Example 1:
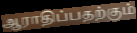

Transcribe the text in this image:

ஆராதிப்பதற்கும்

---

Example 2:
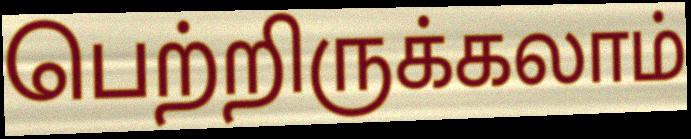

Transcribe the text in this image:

பெற்றிருக்கலாம்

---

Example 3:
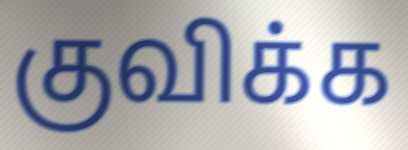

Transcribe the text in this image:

குவிக்க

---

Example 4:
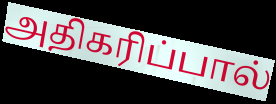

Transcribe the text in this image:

அதிகரிப்பால்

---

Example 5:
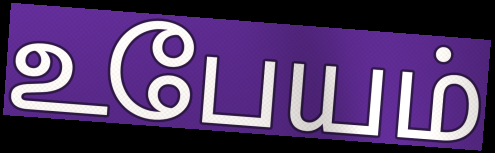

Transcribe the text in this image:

உபேயம்